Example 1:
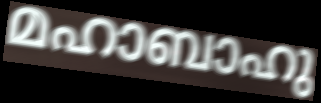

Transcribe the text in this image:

മഹാബാഹു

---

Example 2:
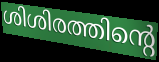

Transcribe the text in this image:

ശിശിരത്തിന്റെ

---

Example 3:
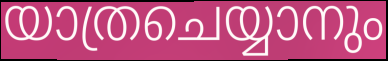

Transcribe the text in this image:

യാത്രചെയ്യാനും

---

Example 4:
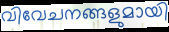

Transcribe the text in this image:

വിവേചനങ്ങളുമായി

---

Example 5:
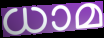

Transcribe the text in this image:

ധാമ